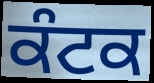
ਕੰਟਕ